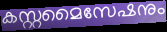
കസ്റ്റമൈസേഷനും